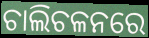
ଚାଲିଚଳନରେ